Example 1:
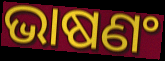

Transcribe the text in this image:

ଭାଷଣଂ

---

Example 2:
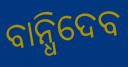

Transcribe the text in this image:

ବାନ୍ଧିଦେବ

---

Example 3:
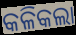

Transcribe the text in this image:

କଳିକଲା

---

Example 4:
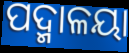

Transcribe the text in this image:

ପଦ୍ମାଳୟା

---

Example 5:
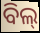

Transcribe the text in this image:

ବିଲ୍